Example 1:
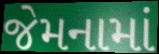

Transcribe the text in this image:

જેમનામાં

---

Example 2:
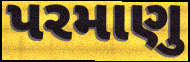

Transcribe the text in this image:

પરમાણુ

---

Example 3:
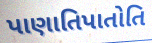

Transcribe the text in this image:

પાણાતિપાતોતિ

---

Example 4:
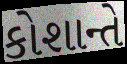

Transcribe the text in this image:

કોશાન્તે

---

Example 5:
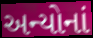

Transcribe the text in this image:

અન્યોનાં